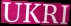
UKRI